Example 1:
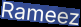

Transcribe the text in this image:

Rameez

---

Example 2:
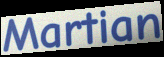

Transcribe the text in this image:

Martian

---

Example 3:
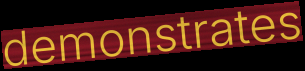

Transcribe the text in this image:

demonstrates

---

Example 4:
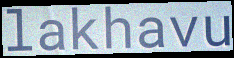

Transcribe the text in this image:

lakhavu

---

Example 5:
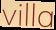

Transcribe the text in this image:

villa